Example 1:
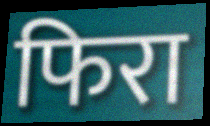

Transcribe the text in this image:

फिरा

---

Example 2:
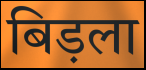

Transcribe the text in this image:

बिड़ला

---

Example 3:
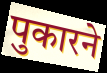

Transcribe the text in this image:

पुकारने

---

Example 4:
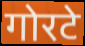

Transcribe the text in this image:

गोरटे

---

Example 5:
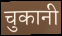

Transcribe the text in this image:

चुकानी